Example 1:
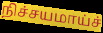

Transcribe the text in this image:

நிச்சயமாய்ச்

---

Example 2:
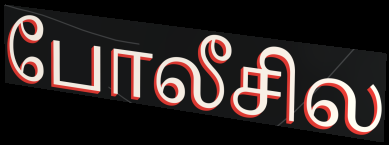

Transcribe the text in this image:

போலீசில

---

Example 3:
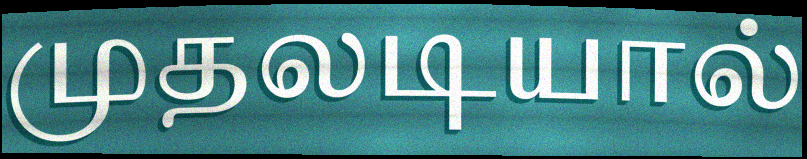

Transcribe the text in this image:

முதலடியால்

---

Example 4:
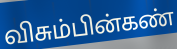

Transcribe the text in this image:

விசும்பின்கண்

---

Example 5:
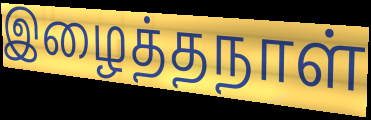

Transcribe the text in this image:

இழைத்தநாள்